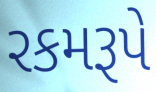
રકમરૂપે